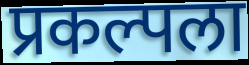
प्रकल्पला